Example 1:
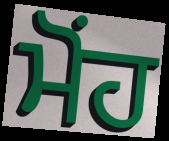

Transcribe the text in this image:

ਮੋਂਹ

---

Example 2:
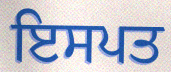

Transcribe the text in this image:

ਇਸਪਤ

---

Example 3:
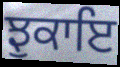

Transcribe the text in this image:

ਝੁਕਾਇ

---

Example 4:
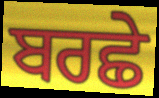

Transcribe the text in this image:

ਬਰਛੇ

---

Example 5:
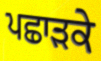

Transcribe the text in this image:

ਪਛਾੜਕੇ